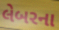
લેબરના